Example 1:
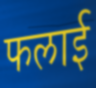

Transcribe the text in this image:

फलाई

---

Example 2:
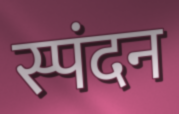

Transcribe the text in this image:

स्पंदन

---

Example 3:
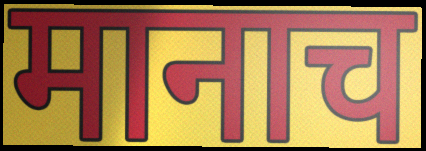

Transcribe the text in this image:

मानाच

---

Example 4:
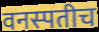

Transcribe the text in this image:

वनस्पतीच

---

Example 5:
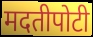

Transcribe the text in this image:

मदतीपोटी